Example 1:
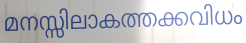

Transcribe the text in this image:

മനസ്സിലാകത്തക്കവിധം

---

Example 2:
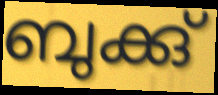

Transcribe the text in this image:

ബുക്കു്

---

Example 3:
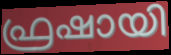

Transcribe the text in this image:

ഫ്രഷായി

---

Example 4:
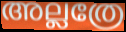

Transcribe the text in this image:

അല്ലത്രേ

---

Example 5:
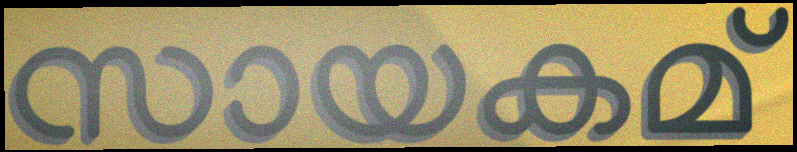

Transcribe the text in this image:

സായകമ്